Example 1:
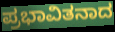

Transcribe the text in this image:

ಪ್ರಭಾವಿತನಾದ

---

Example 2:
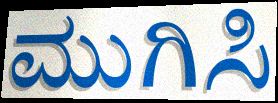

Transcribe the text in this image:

ಮುಗಿಸಿ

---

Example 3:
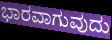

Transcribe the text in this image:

ಭಾರವಾಗುವುದು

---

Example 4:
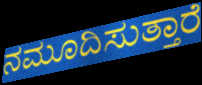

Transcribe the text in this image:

ನಮೂದಿಸುತ್ತಾರೆ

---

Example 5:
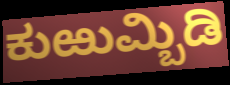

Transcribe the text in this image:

ಕುಱುಮ್ಬಿಡಿ